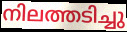
നിലത്തടിച്ചു